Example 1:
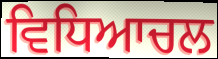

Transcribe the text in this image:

ਵਿਧਿਆਚਲ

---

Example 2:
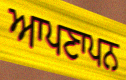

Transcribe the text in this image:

ਆਪਣਾਪਨ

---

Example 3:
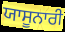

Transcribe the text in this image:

ਯਾਸੂਨਾਰੀ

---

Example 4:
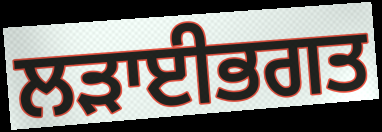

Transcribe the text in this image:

ਲੜਾਈਭਗਤ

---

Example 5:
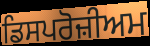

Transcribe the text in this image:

ਡਿਸਪਰੋਜ਼ੀਅਮ